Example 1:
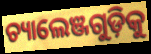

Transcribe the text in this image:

ଚ୍ୟାଲେଞ୍ଜଗୁଡ଼ିକୁ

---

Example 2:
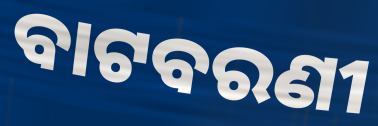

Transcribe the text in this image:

ବାଟବରଣୀ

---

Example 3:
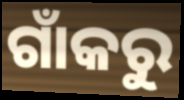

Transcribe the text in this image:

ଗାଁକରୁ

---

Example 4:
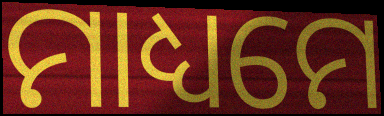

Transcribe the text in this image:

ମାଧ୍ୟମେ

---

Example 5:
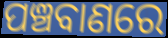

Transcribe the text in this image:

ପଞ୍ଚବାଣରେ